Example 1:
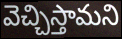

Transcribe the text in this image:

వెచ్చిస్తామని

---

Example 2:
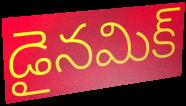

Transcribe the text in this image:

డైనమిక్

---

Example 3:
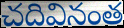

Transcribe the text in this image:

చదివినంత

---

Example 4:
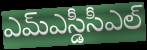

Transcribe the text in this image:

ఎమ్ఎస్డీసీఎల్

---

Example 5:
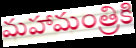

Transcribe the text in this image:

మహామంత్రికి